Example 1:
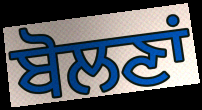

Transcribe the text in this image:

ਬੋਲਣਾਂ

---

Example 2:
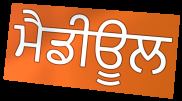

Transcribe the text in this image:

ਮੈਡੀਊਲ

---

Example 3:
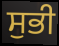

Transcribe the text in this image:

ਸੁਭੀ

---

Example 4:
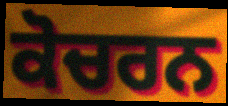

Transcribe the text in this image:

ਕੋਚਰਨ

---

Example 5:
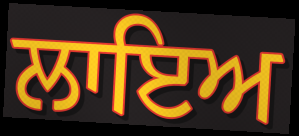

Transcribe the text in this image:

ਲਾਇਅ